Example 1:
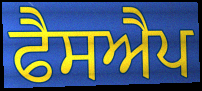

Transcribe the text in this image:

ਫੈਸਐਪ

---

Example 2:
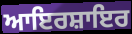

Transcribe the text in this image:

ਆਇਰਸ਼ਾਇਰ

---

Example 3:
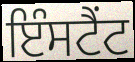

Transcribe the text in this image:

ਇੰਸਟੈਂਟ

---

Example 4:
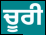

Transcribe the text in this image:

ਚੂਰੀ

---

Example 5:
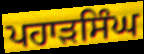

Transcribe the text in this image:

ਪਹਾੜਸਿੰਘ